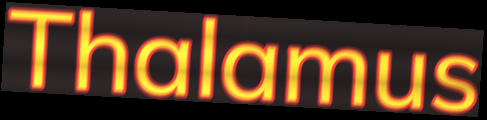
Thalamus